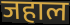
जहाल